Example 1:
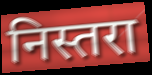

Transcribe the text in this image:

निस्तरा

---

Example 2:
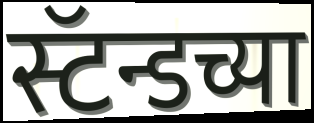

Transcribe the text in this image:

स्टॅन्डच्या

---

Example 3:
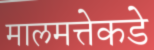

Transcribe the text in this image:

मालमत्तेकडे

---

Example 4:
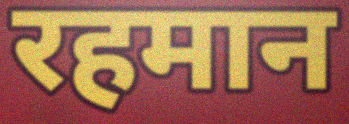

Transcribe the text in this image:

रहमान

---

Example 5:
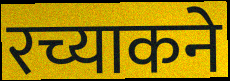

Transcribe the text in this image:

रच्याकने